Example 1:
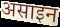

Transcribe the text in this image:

असाइन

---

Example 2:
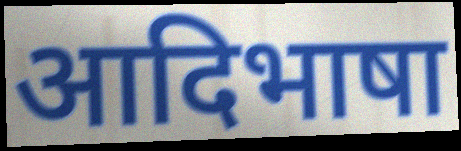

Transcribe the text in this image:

आदिभाषा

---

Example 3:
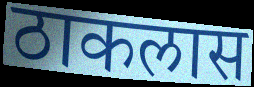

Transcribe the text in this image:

ठाकलास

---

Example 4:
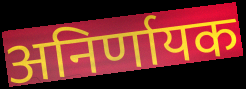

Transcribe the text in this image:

अनिर्णायक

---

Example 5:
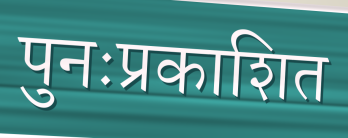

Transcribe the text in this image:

पुनःप्रकाशित